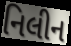
નિલીન